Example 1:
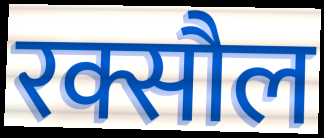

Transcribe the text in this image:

रक्सौल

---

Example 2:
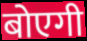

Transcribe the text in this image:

बोएगी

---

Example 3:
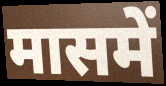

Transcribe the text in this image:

मासमें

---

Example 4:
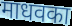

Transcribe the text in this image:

माधवका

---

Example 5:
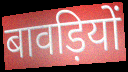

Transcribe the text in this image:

बावड़ियों